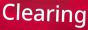
Clearing